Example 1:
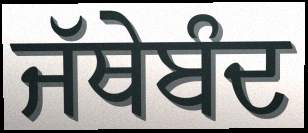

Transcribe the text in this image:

ਜੱਥੇਬੰਦ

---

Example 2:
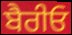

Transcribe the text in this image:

ਬੈਰੀਓ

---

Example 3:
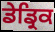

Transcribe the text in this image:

ਡੇਡ੍ਰਿਕ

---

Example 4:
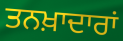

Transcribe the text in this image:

ਤਨਖ਼ਾਦਾਰਾਂ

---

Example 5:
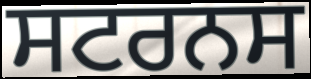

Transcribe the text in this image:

ਸਟਰਨਸ